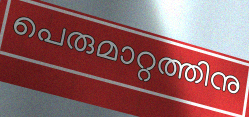
പെരുമാറ്റത്തിനു